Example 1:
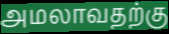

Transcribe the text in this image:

அமலாவதற்கு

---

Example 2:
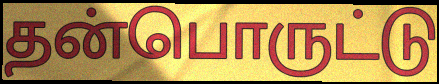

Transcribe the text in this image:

தன்பொருட்டு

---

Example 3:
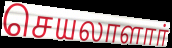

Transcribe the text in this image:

செயலாளார்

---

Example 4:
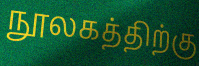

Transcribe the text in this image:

நூலகத்திற்கு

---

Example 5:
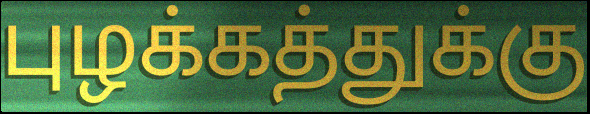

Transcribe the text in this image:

புழக்கத்துக்கு